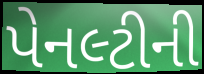
પેનલ્ટીની